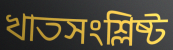
খাতসংশ্লিষ্ট